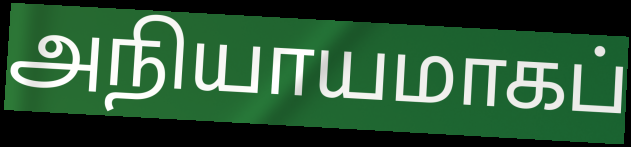
அநியாயமாகப்